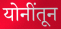
योनींतून